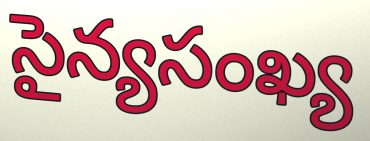
సైన్యసంఖ్య